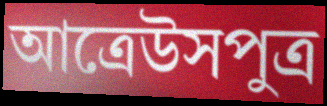
আত্রেউসপুত্র